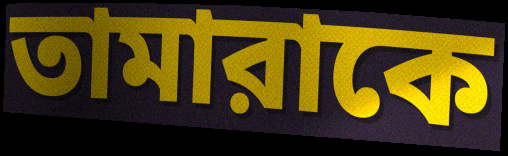
তামারাকে